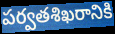
పర్వతశిఖరానికి